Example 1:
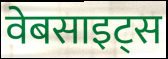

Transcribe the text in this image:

वेबसाइट्स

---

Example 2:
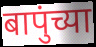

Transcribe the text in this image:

बापुंच्या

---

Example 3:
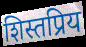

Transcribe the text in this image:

शिस्तप्रिय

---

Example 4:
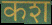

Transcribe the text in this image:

कश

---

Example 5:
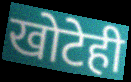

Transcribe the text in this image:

खोटेही